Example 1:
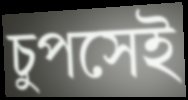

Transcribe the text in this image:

চুপসেই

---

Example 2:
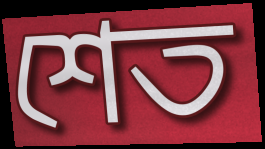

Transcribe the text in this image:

শেত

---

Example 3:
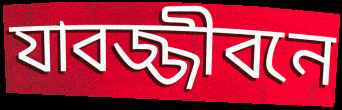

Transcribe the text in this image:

যাবজ্জীবনে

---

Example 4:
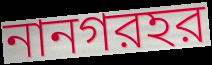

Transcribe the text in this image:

নানগরহর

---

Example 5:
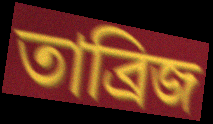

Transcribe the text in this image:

তাব্রিজ